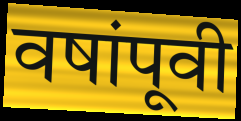
वषांपूवी